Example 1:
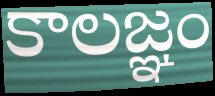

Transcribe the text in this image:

కాలజ్ఞం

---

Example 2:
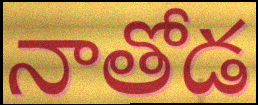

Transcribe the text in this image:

నాతోడ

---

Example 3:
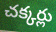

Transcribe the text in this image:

చక్కర్లు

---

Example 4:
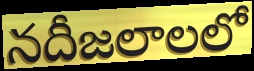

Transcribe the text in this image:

నదీజలాలలో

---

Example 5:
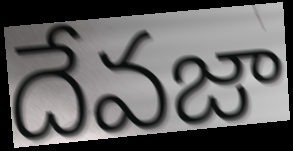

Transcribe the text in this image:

దేవజా